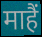
माहैं